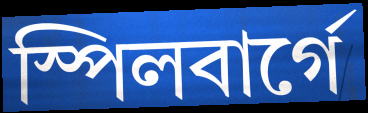
স্পিলবাৰ্গে